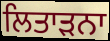
ਲਿਤਾੜਨਾ